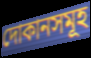
দোকানসমূহ